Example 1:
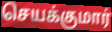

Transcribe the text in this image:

செயக்குமார்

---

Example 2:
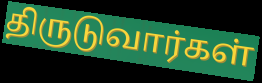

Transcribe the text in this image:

திருடுவார்கள்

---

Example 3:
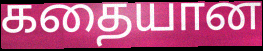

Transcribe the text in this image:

கதையான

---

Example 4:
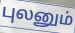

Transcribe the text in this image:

புலனும்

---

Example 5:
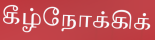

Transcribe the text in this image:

கீழ்நோக்கிக்